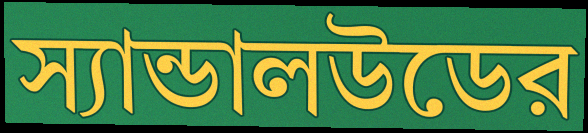
স্যান্ডালউডের